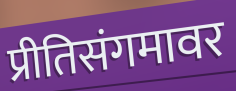
प्रीतिसंगमावर